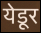
येडूर